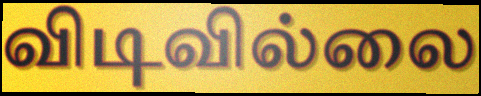
விடிவில்லை